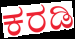
ಕರಡಿ